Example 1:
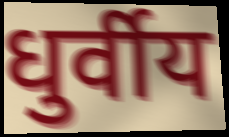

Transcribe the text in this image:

धुर्वीय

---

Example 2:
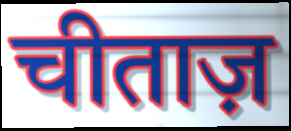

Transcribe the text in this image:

चीताज़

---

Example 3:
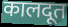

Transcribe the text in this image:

कालदूत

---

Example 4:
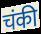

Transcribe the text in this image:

चंकी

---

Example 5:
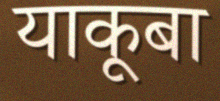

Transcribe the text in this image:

याकूबा